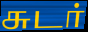
சுடர்